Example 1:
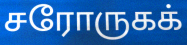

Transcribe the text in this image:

சரோருகக்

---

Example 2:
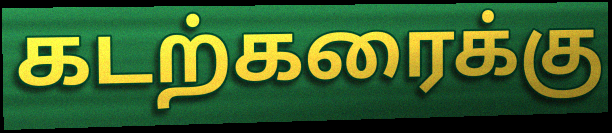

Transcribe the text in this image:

கடற்கரைக்கு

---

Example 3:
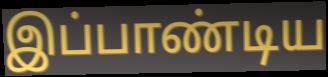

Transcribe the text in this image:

இப்பாண்டிய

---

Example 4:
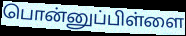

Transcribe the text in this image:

பொன்னுப்பிள்ளை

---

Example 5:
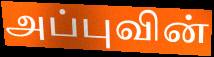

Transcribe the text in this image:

அப்புவின்